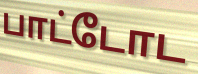
பாட்டோட